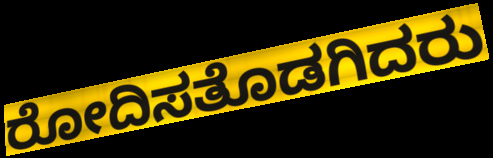
ರೋದಿಸತೊಡಗಿದರು